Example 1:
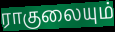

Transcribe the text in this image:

ராகுலையும்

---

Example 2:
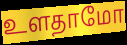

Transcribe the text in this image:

உளதாமோ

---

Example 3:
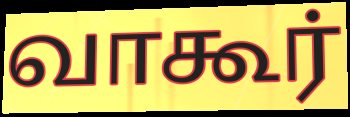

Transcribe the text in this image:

வாகூர்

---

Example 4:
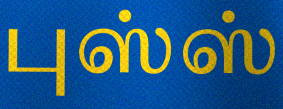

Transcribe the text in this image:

புஸ்ஸ்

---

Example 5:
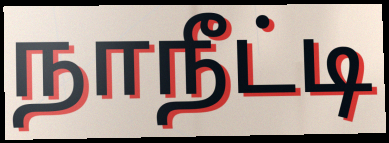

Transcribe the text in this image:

நாநீட்டி